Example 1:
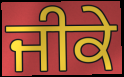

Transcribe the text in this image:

ਜੀਕੇ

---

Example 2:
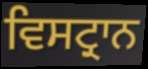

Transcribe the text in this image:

ਵਿਸਟ੍ਰਾਨ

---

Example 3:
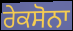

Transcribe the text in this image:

ਰੇਕਸੋਨਾ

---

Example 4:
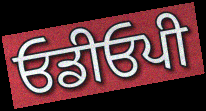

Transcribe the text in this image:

ਓਡੀਓਪੀ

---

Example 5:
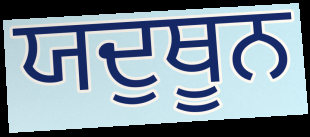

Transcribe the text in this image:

ਯਦੁਥੂਨ